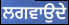
ਲਗਵਾਉਦੇ